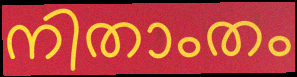
നിതാംതം